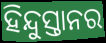
ହିନ୍ଦୁସ୍ତାନର